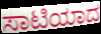
ಸಾಟಿಯಾದ